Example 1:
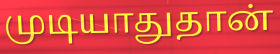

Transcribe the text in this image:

முடியாதுதான்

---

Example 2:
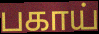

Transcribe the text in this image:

பகாய்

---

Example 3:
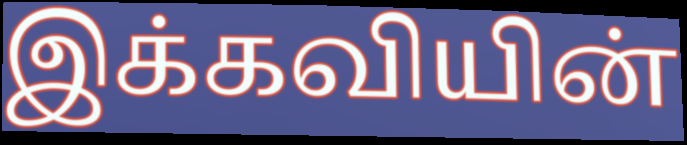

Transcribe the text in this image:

இக்கவியின்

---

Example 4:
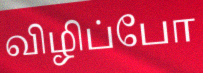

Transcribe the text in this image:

விழிப்போ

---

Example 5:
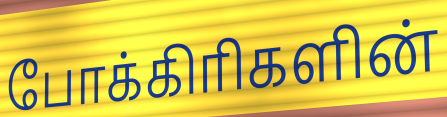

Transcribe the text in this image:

போக்கிரிகளின்